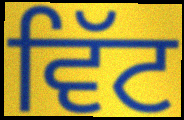
ਵਿੱਟ